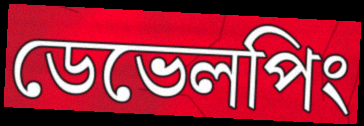
ডেভেলপিং